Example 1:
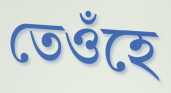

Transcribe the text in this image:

তেওঁহে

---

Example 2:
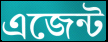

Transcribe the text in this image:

এজেন্ট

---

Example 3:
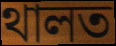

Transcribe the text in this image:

থালত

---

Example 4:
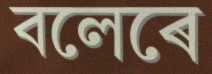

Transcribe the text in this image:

বলেৰে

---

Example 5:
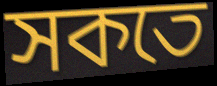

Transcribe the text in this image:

সকতে